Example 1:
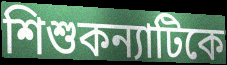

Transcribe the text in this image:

শিশুকন্যাটিকে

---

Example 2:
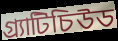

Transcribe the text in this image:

গ্র্যাটিচিউড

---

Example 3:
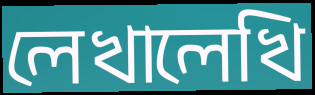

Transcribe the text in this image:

লেখালেখি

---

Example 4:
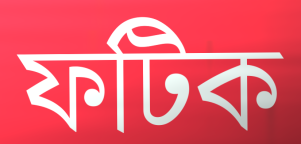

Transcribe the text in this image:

ফটিক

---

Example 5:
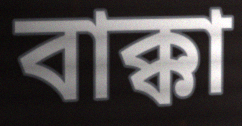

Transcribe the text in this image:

বাক্কা